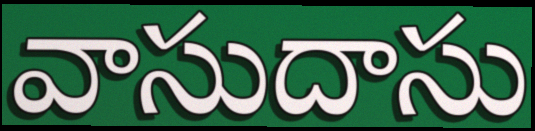
వాసుదాసు